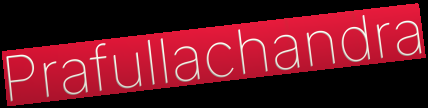
Prafullachandra